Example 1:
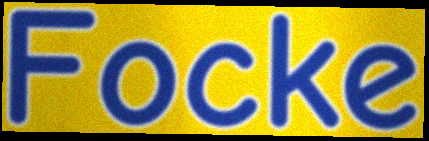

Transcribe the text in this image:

Focke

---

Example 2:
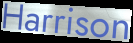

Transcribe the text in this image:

Harrison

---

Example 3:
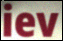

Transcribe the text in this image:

iev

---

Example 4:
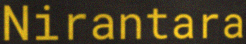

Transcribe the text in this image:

Nirantara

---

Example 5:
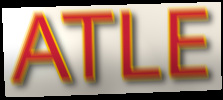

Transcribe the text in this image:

ATLE